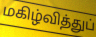
மகிழ்வித்துப்